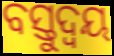
ବସ୍ତୁଦ୍ୱୟ